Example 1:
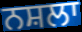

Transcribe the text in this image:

ਨਸ਼ਲਾ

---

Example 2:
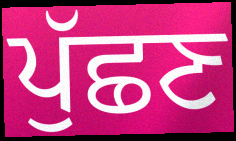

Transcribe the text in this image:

ਪੁੱਛਣ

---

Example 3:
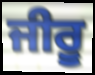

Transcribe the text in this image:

ਜੀਰੂ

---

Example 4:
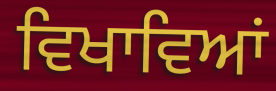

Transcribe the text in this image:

ਵਿਖਾਵਿਆਂ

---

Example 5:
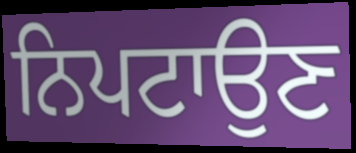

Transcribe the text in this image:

ਨਿਪਟਾਉਣ